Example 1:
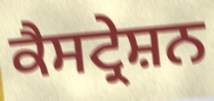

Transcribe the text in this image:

ਕੈਸਟ੍ਰੇਸ਼ਨ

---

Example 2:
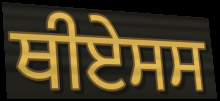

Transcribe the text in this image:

ਥੀਏਸਸ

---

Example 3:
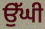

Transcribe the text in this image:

ਉੱਘੀ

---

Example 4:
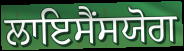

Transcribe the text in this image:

ਲਾਇਸੈਂਸਯੋਗ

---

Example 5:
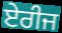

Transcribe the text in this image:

ਏਰੀਜ